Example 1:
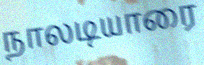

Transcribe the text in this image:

நாலடியாரை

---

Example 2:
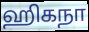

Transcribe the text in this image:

ஹிகநா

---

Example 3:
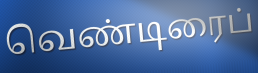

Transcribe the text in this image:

வெண்டிரைப்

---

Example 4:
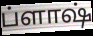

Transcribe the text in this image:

ப்ளாஷ்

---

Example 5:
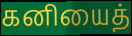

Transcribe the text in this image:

கனியைத்